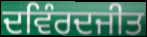
ਦਵਿੰਰਦਜੀਤ